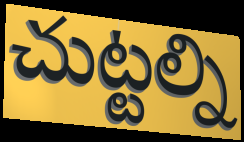
చుట్టల్ని